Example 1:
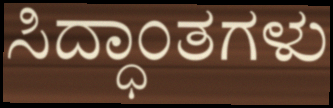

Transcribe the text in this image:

ಸಿದ್ಧಾಂತಗಳು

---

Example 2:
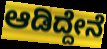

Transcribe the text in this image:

ಆಡಿದ್ದೇನೆ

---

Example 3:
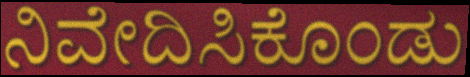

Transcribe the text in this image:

ನಿವೇದಿಸಿಕೊಂಡು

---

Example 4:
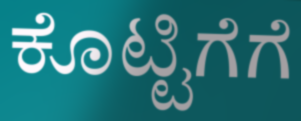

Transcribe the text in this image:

ಕೊಟ್ಟಿಗೆಗೆ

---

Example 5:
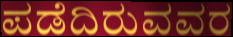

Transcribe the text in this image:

ಪಡೆದಿರುವವರ